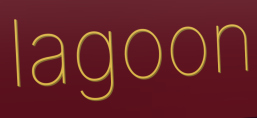
lagoon